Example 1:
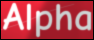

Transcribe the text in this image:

Alpha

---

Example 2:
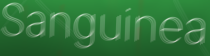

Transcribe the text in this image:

Sanguinea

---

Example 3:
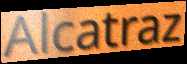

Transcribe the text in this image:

Alcatraz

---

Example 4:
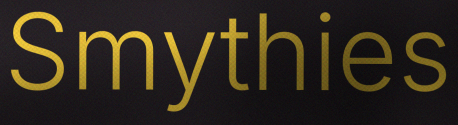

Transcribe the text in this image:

Smythies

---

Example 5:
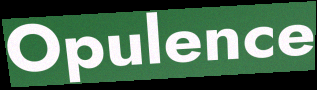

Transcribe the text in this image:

Opulence